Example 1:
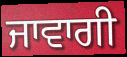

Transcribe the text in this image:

ਜਾਵਾਗੀ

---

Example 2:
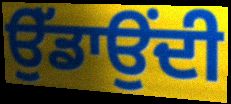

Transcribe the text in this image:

ਉੱਡਾਉਂਦੀ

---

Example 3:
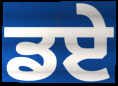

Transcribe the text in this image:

ਡਏ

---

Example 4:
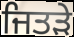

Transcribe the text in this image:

ਜਿਤੜੇ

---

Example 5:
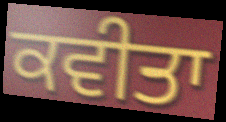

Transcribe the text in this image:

ਕਵੀਤਾ